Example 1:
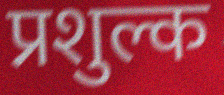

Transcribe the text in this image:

प्रशुल्क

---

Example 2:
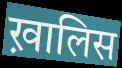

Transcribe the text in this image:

ख़ालिस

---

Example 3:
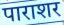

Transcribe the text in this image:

पाराशर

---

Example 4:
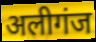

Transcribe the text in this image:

अलीगंज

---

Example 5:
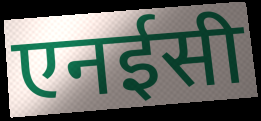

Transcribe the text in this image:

एनईसी